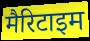
मैरिटाइम